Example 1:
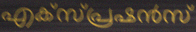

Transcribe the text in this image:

എക്സ്പ്രഷൻസ്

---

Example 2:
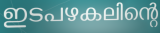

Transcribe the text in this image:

ഇടപഴകലിന്റെ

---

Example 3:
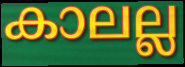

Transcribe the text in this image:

കാലല്ല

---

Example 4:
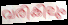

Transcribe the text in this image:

വരികിലും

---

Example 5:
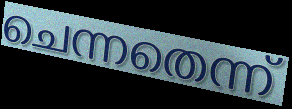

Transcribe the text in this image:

ചെന്നതെന്ന്